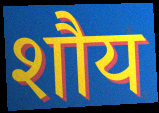
शौय